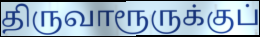
திருவாரூருக்குப்